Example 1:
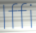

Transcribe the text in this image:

Iffi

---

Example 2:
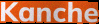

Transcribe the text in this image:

Kanche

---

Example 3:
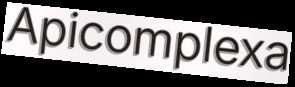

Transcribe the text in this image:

Apicomplexa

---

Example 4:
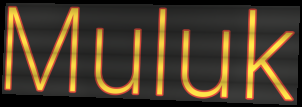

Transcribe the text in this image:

Muluk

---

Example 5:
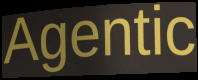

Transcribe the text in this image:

Agentic